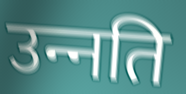
उन्‍नति